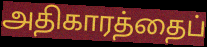
அதிகாரத்தைப்